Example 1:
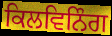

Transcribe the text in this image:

ਕਿਲਵਿਨਿੰਗ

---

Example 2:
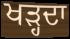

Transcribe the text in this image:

ਖੜ੍ਹਦਾ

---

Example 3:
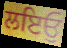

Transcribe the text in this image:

ਲਇਓੁ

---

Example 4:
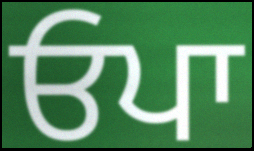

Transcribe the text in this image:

ਓਪਾ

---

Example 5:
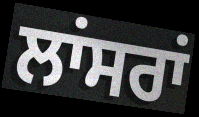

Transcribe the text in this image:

ਲਾਂਸਰਾਂ